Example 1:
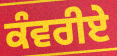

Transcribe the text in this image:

ਕੰਵਰੀਏ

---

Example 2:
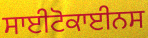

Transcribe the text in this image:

ਸਾਈਟੋਕਾਈਨਸ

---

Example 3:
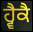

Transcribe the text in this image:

ਹ੍ਵੈਕੈ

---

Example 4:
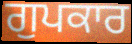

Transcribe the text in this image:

ਗੁਪਕਾਰ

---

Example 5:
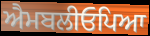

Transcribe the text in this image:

ਐਮਬਲੀਓਪਿਆ